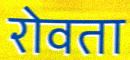
रोवता